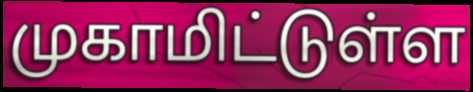
முகாமிட்டுள்ள